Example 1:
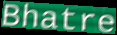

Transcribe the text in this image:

Bhatre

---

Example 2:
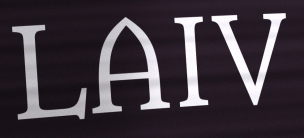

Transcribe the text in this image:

LAIV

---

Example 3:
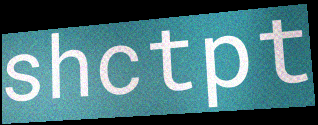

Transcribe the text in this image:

shctpt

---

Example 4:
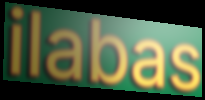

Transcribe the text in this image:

ilabas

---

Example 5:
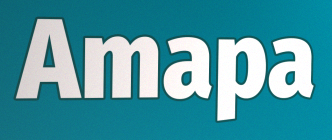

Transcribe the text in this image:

Amapa